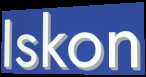
Iskon